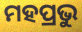
ମହପ୍ରଭୁ